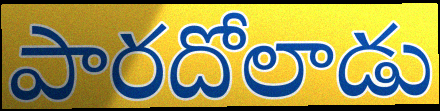
పారదోలాడు